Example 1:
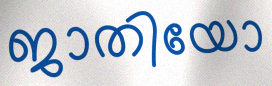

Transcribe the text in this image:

ജാതിയോ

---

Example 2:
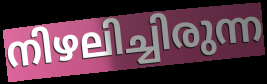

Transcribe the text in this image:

നിഴലിച്ചിരുന്ന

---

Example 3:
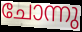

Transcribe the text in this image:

ചോന്നു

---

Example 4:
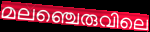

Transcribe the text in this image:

മലഞ്ചെരുവിലെ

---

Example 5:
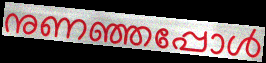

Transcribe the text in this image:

നുണഞ്ഞപ്പോൾ